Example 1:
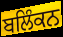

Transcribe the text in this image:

ਬਲਿੰਕਨ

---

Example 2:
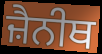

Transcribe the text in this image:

ਜ਼ੈਨੀਥ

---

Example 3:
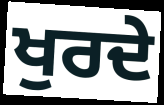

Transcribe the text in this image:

ਖੁਰਦੇ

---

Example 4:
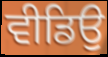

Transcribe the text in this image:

ਵੀਡਿਉ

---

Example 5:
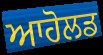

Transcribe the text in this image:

ਆਹੋਲਡ